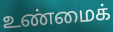
உண்மைக்